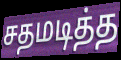
சதமடித்த